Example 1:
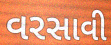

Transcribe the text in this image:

વરસાવી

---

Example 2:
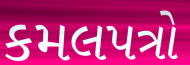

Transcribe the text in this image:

કમલપત્રો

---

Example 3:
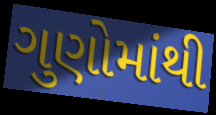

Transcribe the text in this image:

ગુણોમાંથી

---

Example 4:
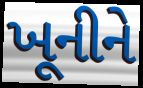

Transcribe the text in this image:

ખૂનીને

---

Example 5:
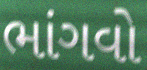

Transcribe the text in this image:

ભાંગવો